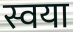
स्वया